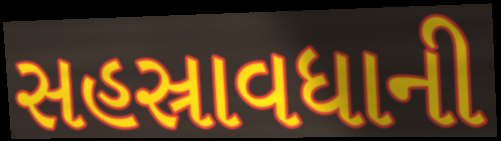
સહસ્રાવધાની